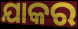
ଯାକର